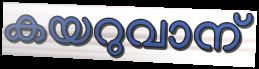
കയറുവാന്